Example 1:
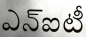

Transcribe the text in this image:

ఎన్ఐటీ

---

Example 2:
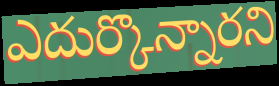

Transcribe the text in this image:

ఎదుర్కొన్నారని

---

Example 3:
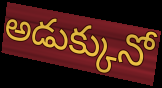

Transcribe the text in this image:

అడుక్కునో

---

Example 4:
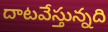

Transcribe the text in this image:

దాటవేస్తున్నది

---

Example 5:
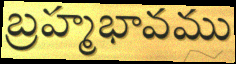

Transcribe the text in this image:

బ్రహ్మభావము